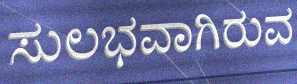
ಸುಲಭವಾಗಿರುವ